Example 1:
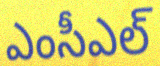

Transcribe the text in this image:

ఎంసీఎల్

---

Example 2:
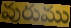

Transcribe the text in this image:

వురుము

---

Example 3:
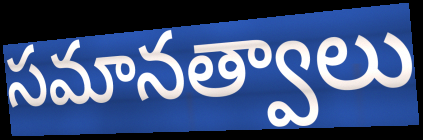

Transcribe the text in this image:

సమానత్వాలు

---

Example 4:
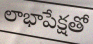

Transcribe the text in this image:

లాభాపేక్షతో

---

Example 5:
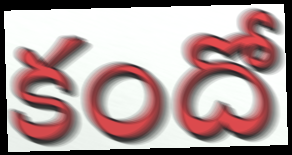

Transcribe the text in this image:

కందో